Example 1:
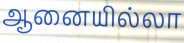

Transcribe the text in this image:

ஆனையில்லா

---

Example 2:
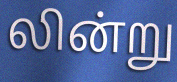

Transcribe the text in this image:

லின்று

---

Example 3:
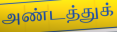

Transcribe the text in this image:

அண்டத்துக்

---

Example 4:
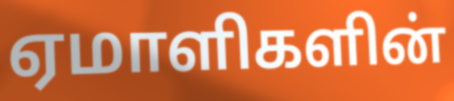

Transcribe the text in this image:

ஏமாளிகளின்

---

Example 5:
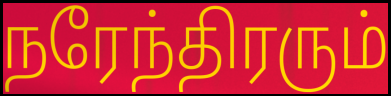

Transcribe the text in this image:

நரேந்திரரும்